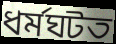
ধৰ্মঘটত